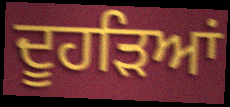
ਦੂਹੜਿਆਂ